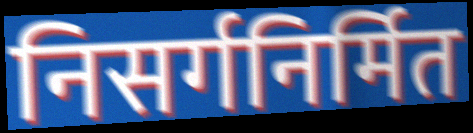
निसर्गनिर्मित